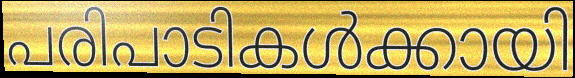
പരിപാടികൾക്കായി